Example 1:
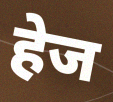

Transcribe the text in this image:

हेज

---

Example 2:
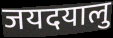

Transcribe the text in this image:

जयदयालु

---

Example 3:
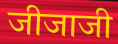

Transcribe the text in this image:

जीजाजी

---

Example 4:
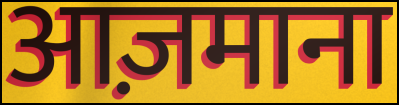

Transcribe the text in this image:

आज़माना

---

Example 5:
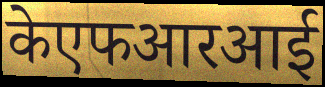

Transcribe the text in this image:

केएफआरआई